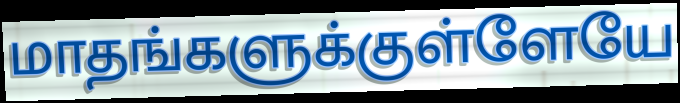
மாதங்களுக்குள்ளேயே